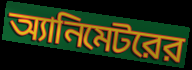
অ্যানিমেটরের